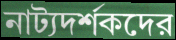
নাট্যদর্শকদের